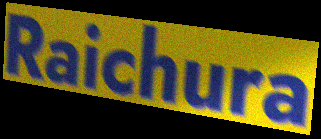
Raichura